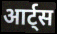
आर्ट्स